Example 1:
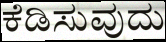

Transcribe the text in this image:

ಕೆಡಿಸುವುದು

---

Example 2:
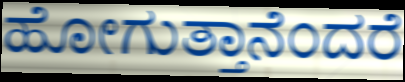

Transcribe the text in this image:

ಹೋಗುತ್ತಾನೆಂದರೆ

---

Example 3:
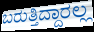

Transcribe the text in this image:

ಬರುತ್ತಿದ್ದಾರಲ್ಲ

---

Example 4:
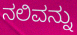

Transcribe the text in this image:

ನಲಿವನ್ನು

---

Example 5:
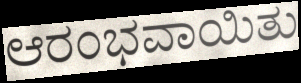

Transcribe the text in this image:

ಆರಂಭವಾಯಿತು